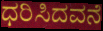
ಧರಿಸಿದವನೆ